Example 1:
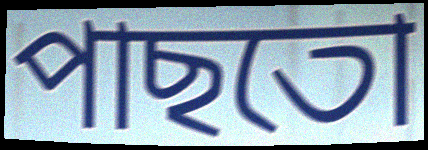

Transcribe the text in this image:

পাছতো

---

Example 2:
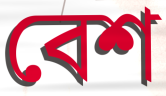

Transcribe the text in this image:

বেশ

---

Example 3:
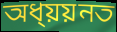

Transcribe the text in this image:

অধ্য়য়নত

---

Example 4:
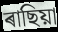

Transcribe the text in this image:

ৰাছিয়া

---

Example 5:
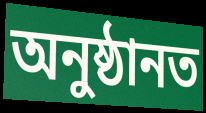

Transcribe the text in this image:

অনুষ্ঠানত